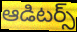
ఆడిటర్స్